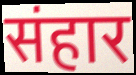
संहार